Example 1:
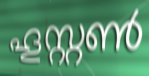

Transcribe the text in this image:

ഹൂസ്റ്റൺ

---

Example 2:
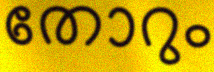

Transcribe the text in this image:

തോറും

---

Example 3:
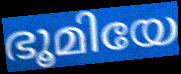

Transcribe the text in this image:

ഭൂമിയേ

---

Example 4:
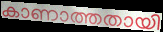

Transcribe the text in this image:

കാണാത്തതായി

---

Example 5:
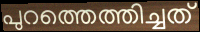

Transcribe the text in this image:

പുറത്തെത്തിച്ചത്